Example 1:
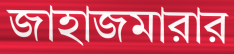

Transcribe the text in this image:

জাহাজমারার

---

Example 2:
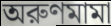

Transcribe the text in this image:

অরুণমামা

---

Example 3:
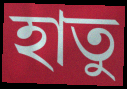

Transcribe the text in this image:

হাতু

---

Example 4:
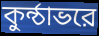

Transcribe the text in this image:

কুন্ঠাভরে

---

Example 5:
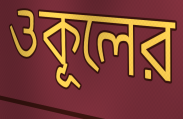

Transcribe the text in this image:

ওকূলের